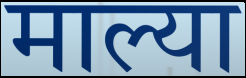
माल्या